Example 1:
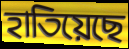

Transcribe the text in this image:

হাতিয়েছে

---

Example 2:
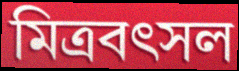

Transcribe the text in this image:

মিত্রবৎসল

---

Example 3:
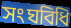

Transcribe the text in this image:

সংঘবিধি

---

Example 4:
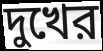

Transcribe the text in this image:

দুখের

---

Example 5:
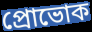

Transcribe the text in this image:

প্রোভোক